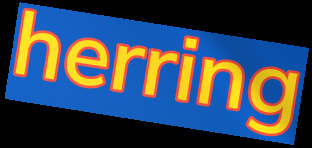
herring